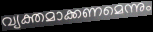
വ്യക്തമാക്കണമെന്നും